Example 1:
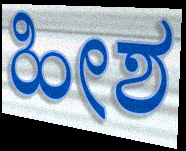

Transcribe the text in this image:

ಹೀಶ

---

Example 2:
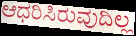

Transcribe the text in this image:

ಆಧರಿಸಿರುವುದಿಲ್ಲ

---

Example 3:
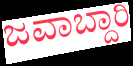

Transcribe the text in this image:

ಜವಾಬ್ದಾರಿ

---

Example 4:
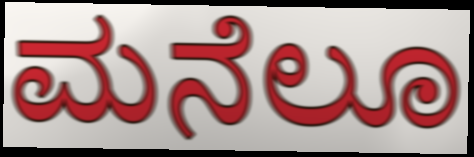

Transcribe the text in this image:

ಮನೆಲೂ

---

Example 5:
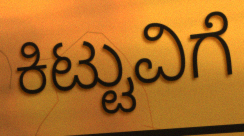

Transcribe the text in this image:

ಕಿಟ್ಟುವಿಗೆ